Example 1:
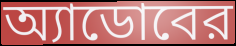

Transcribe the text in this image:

অ্যাডোবের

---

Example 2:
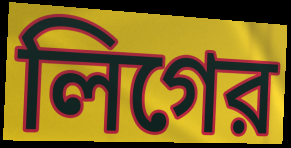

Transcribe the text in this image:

লিগের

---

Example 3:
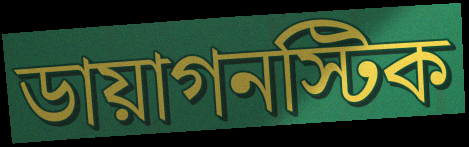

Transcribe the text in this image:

ডায়াগনস্টিক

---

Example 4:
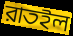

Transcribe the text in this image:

রাতইল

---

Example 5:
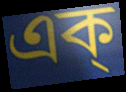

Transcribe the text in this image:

এক্